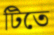
টিতে